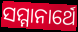
ସମ୍ମାନାର୍ଥେ